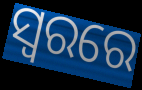
ସ୍ବରରେ